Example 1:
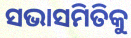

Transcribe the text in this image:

ସଭାସମିତିକୁ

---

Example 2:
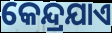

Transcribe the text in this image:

କେନ୍ଦ୍ରଯାଏ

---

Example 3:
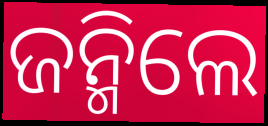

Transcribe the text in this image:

ଜନ୍ମିଲେ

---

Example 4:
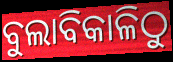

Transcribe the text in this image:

ବୁଲାବିକାଳିଠୁ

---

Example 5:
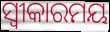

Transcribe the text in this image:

ସ୍ଵୀକାରମୟ